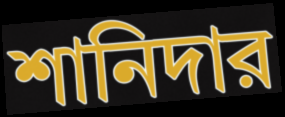
শানিদার